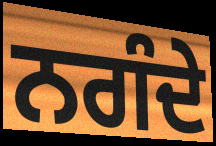
ਨਗੰਦੇ